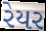
રેયર